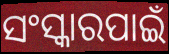
ସଂସ୍କାରପାଇଁ